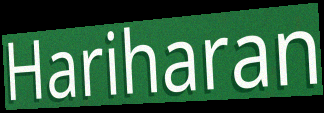
Hariharan